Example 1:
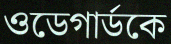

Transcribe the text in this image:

ওডেগার্ডকে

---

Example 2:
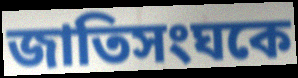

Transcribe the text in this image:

জাতিসংঘকে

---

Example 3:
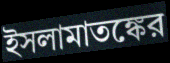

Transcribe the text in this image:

ইসলামাতঙ্কের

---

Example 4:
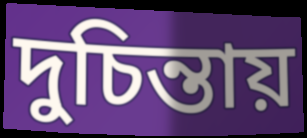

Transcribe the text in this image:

দুচিন্তায়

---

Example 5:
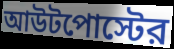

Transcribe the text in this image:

আউটপোস্টের